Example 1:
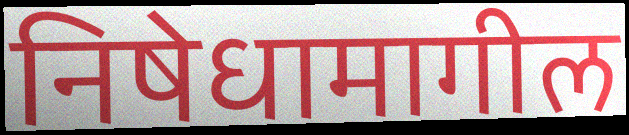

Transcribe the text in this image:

निषेधामागील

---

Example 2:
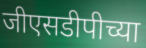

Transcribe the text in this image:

जीएसडीपीच्या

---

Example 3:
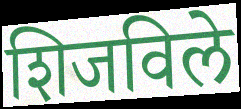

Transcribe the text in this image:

शिजविले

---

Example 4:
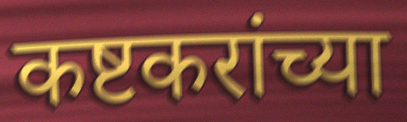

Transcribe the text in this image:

कष्टकरांच्या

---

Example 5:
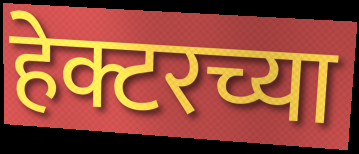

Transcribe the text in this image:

हेक्टरच्या